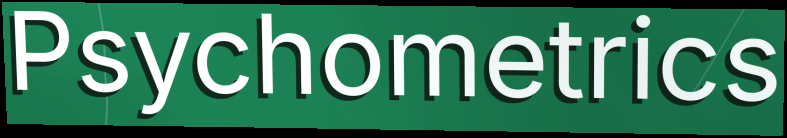
Psychometrics